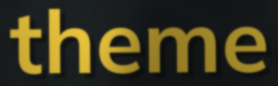
theme